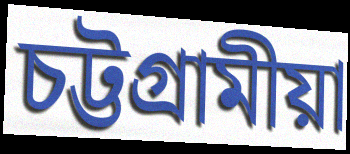
চট্টগ্ৰামীয়া